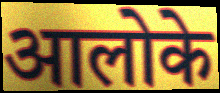
आलोके